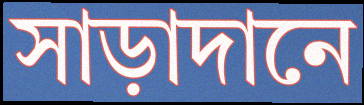
সাড়াদানে